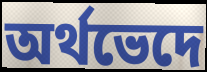
অর্থভেদে